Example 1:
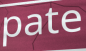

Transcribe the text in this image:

pate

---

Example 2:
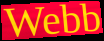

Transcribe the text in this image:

Webb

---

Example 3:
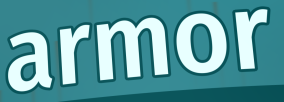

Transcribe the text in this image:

armor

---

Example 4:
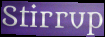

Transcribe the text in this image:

Stirrup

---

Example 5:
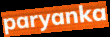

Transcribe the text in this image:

paryanka